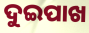
ଦୁଇପାଖ